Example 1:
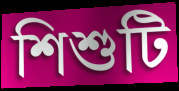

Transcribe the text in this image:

শিশুটি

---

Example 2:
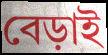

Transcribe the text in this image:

বেড়াই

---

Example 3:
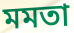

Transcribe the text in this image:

মমতা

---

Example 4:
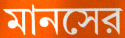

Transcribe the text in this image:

মানসের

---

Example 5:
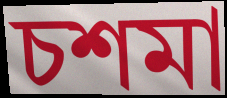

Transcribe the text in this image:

চশমা